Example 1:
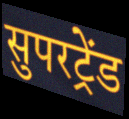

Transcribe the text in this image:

सुपरट्रेंड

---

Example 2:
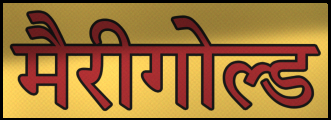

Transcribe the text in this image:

मैरीगोल्ड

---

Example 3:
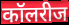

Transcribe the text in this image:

कॉलरीज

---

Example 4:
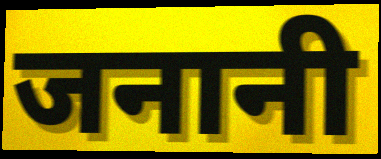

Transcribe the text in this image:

जनानी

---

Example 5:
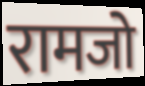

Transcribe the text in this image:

रामजो